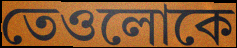
তেওলোকে